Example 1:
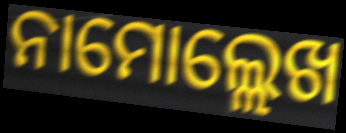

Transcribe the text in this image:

ନାମୋଲ୍ଲେଖ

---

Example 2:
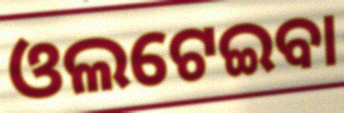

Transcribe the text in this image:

ଓଲଟେଇବା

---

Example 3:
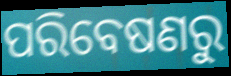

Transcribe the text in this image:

ପରିବେଷଣରୁ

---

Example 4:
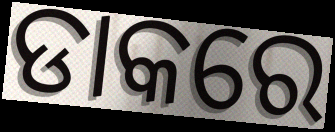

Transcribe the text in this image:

ଡାକରେ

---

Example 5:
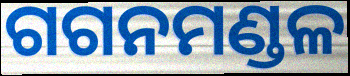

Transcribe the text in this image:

ଗଗନମଣ୍ଡଳ